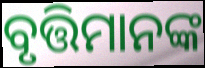
ବୃତ୍ତିମାନଙ୍କ